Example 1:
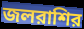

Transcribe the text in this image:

জলরাশির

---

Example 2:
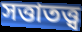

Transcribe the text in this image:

সত্তাতত্ত্ব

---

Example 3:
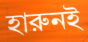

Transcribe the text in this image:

হারুনই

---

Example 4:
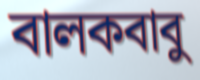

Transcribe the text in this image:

বালকবাবু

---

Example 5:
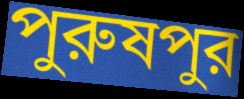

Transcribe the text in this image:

পুরুষপুর